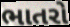
ભાતરો